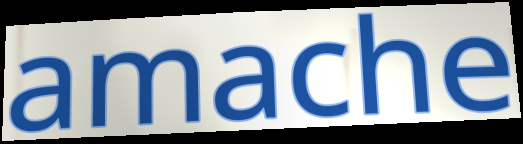
amache